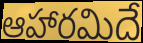
ఆహారమిదే